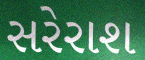
સરેરાશ